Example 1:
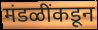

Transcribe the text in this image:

मंडळींकडून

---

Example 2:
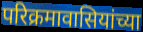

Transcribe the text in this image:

परिक्रमावासियांच्या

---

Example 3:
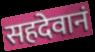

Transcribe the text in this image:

सहदेवानं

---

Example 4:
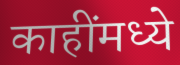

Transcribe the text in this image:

काहींमध्ये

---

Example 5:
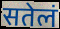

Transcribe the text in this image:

सतेलं